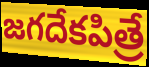
జగదేకపిత్రే